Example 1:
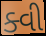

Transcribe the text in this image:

ક્વી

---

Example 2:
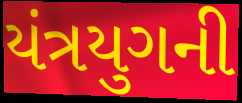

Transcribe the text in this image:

યંત્રયુગની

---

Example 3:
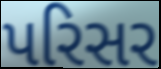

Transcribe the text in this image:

પરિસર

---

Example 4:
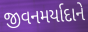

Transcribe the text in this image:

જીવનમર્યાદાને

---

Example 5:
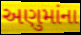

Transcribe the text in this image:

અણુમાંના